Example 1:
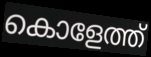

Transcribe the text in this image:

കൊളേത്ത്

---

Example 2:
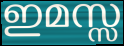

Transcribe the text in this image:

ഇമസ്സ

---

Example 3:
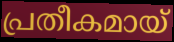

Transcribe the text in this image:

പ്രതീകമായ്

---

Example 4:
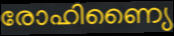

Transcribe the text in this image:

രോഹിണ്യൈ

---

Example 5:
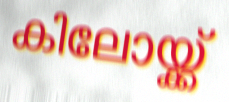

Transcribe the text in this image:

കിലോയ്ക്ക്